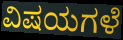
ವಿಷಯಗಳೆ